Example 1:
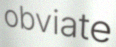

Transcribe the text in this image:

obviate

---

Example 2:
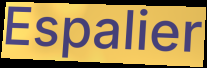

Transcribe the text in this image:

Espalier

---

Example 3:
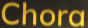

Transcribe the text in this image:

Chora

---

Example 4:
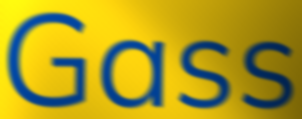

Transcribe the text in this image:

Gass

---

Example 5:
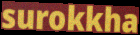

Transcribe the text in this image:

surokkha